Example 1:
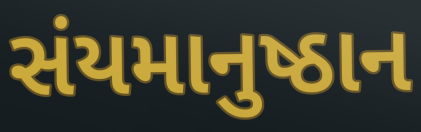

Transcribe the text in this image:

સંયમાનુષ્ઠાન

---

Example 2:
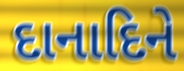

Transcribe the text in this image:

દાનાદિને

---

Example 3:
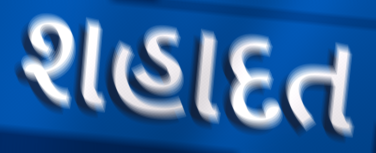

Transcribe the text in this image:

શહાદત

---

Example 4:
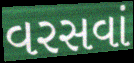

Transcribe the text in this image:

વરસવાં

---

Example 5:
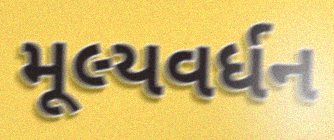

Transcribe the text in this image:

મૂલ્યવર્ધન